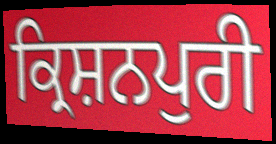
ਕ੍ਰਿਸ਼ਨਪੁਰੀ